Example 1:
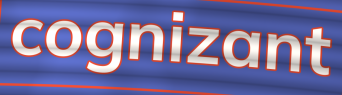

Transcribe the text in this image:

cognizant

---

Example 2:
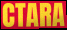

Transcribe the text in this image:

CTARA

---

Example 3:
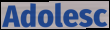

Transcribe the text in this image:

Adolesc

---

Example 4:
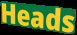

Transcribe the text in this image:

Heads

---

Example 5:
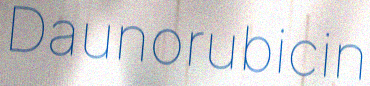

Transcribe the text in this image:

Daunorubicin